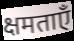
क्षमताएँ